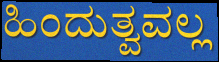
ಹಿಂದುತ್ವವಲ್ಲ